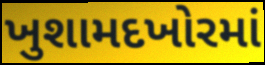
ખુશામદખોરમાં